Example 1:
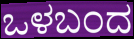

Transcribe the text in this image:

ಒಳಬಂದ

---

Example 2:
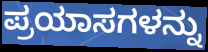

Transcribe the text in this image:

ಪ್ರಯಾಸಗಳನ್ನು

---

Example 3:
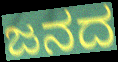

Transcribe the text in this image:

ಜನದ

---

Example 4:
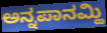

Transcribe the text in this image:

ಅನ್ನಪಾನಮ್ಹಿ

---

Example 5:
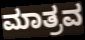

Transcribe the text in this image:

ಮಾತ್ರವ